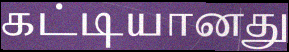
கட்டியானது